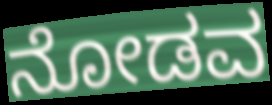
ನೋಡವ